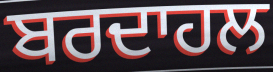
ਬਰਦਾਹਲ